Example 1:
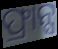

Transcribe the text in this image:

ଫ୍ରାନ୍ସ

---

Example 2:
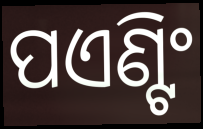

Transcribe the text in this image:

ପଏଣ୍ଟିଂ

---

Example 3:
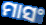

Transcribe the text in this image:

ମାସଂ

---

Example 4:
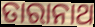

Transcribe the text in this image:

ତାରାନାଥ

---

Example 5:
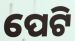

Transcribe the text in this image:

ପେଟି